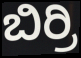
ಬಿರ್ರಿ